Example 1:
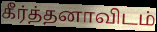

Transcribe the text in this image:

கீர்த்தனாவிடம்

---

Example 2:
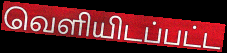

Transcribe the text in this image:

வெளியிடப்பட்ட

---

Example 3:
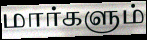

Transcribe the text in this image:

மார்களும்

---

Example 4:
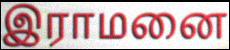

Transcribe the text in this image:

இராமனை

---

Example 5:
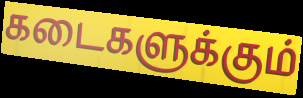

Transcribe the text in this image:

கடைகளுக்கும்